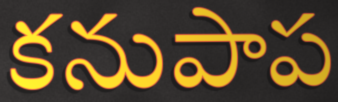
కనుపాప